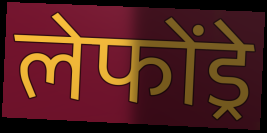
लेफोंड्रे